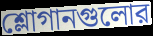
শ্লোগানগুলোর